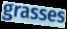
grasses